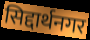
सिद्दार्थनगर